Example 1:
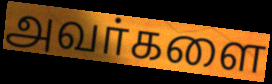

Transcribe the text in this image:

அவர்களை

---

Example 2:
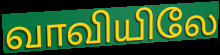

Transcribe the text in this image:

வாவியிலே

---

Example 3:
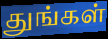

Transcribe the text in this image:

துங்கள்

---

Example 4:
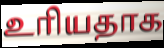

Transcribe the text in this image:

உரியதாக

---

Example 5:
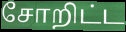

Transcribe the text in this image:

சோறிட்ட